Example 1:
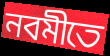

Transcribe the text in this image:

নবমীতে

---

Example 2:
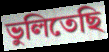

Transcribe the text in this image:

ভুলিতেছি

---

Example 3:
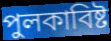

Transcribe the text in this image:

পুলকাবিষ্ট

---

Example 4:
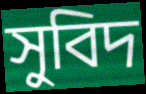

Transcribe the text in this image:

সুবিদ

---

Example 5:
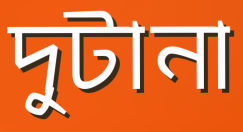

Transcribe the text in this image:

দুটানা